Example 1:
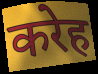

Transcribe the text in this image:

करेह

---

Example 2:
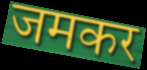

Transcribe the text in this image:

जमकर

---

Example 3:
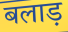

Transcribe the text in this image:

बलाड़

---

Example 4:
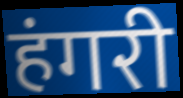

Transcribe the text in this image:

हंगरी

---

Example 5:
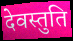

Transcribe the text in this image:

देवस्तुति